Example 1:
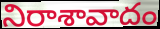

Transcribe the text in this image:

నిరాశావాదం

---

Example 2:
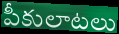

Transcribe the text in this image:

పీకులాటలు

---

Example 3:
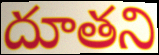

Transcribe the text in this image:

దూతని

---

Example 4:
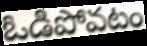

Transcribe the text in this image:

ఓడిపోవటం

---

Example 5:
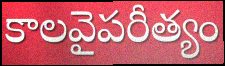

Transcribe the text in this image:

కాలవైపరీత్యం